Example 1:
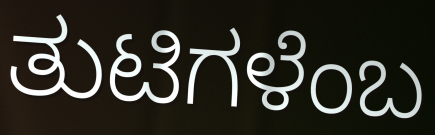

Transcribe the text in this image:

ತುಟಿಗಳೆಂಬ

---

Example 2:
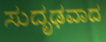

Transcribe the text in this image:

ಸುದೃಢವಾದ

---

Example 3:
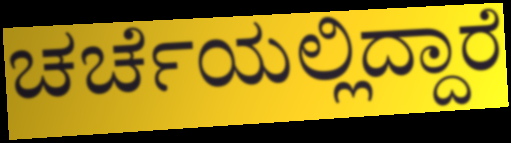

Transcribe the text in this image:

ಚರ್ಚೆಯಲ್ಲಿದ್ದಾರೆ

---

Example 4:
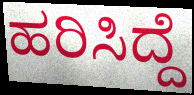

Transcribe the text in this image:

ಹರಿಸಿದ್ದೆ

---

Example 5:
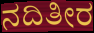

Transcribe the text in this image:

ನದಿತೀರ